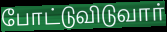
போட்டுவிடுவார்